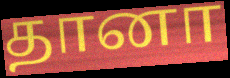
தானா